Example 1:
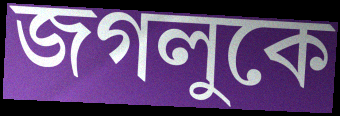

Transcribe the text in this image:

জগলুকে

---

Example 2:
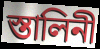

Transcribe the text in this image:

স্তালিনী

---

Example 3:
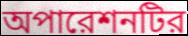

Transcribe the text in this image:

অপারেশনটির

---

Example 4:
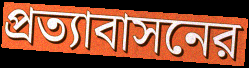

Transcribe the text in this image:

প্রত্যাবাসনের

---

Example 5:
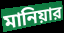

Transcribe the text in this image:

মানিয়ার